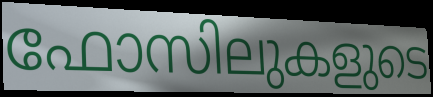
ഫോസിലുകളുടെ